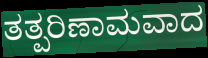
ತತ್ಪರಿಣಾಮವಾದ